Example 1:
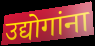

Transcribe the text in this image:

उद्योगांना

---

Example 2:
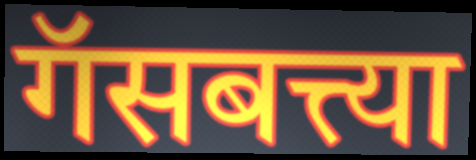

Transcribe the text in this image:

गॅसबत्त्या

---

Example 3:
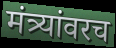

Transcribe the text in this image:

मंत्र्यांवरच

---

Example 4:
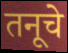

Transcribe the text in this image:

तनूचे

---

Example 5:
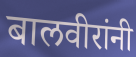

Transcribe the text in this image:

बालवीरांनी